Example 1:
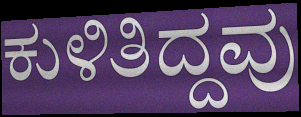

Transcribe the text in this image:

ಕುಳಿತಿದ್ದವು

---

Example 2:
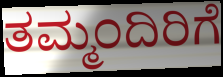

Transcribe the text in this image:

ತಮ್ಮಂದಿರಿಗೆ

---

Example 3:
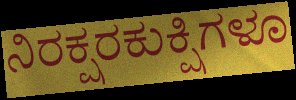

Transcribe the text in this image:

ನಿರಕ್ಷರಕುಕ್ಷಿಗಳೂ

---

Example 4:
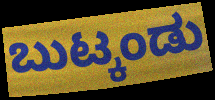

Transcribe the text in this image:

ಬುಟ್ಕಂಡು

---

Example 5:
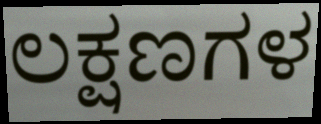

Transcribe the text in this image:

ಲಕ್ಷಣಗಳ